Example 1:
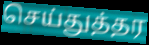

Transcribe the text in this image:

செய்துத்தர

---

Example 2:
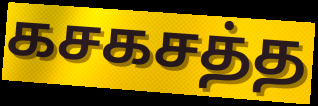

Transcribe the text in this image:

கசகசத்த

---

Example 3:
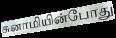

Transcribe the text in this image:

சுனாமியின்போது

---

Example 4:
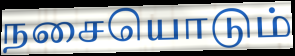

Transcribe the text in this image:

நசையொடும்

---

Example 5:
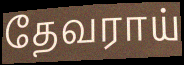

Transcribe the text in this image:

தேவராய்